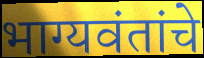
भाग्यवंतांचे